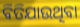
ବିତିଯାଉଥିବା